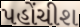
પહોંચીશ